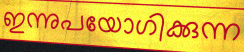
ഇന്നുപയോഗിക്കുന്ന